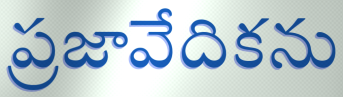
ప్రజావేదికను